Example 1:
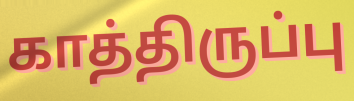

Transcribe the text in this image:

காத்திருப்பு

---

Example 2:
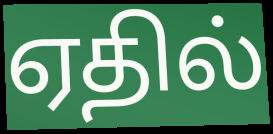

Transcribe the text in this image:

ஏதில்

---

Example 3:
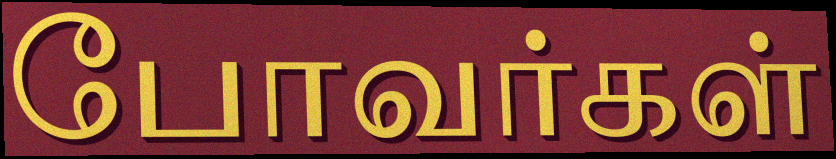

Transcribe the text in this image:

போவர்கள்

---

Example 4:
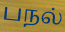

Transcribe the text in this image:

பநல்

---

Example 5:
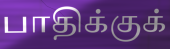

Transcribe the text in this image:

பாதிக்குக்